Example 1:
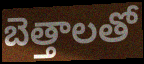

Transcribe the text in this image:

బెత్తాలతో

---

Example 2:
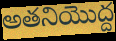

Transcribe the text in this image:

అతనియొద్ద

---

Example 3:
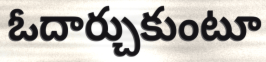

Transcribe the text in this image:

ఓదార్చుకుంటూ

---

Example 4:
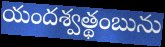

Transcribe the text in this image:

యందశ్వత్థంబును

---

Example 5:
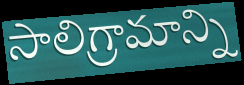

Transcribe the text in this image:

సాలిగ్రామాన్ని